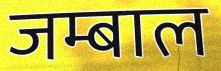
जम्बाल